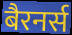
बैरनर्स